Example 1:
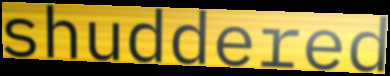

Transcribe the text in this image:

shuddered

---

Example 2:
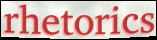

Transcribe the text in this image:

rhetorics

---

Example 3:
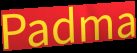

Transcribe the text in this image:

Padma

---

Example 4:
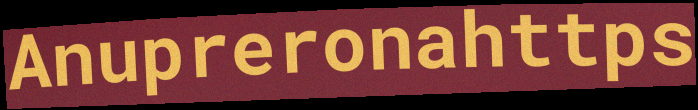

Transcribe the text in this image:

Anupreronahttps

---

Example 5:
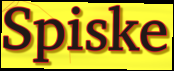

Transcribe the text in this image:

Spiske